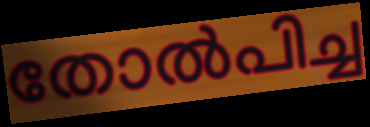
തോൽപിച്ച